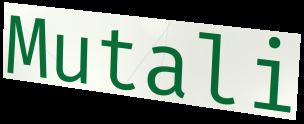
Mutali